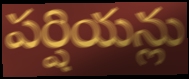
పర్షియన్లు